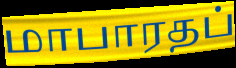
மாபாரதப்